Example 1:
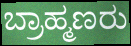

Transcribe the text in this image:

ಬ್ರಾಹ್ಮಣರು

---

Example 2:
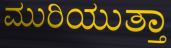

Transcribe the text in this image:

ಮುರಿಯುತ್ತಾ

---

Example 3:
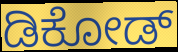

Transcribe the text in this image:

ಡಿಕೋಡ್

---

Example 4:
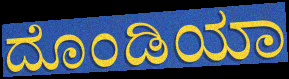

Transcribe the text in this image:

ದೊಂಡಿಯಾ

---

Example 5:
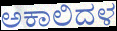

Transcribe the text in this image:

ಅಕಾಲಿದಳ